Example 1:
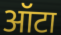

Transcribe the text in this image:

ऑटा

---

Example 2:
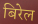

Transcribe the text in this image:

बिरेल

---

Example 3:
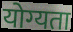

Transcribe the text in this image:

योग्‍यता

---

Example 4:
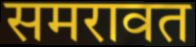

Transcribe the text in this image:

समरावत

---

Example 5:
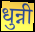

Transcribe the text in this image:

धुन्नी